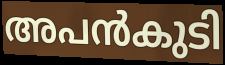
അപൻകുടി